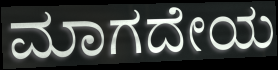
ಮಾಗದೇಯ